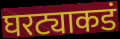
घरट्याकडं